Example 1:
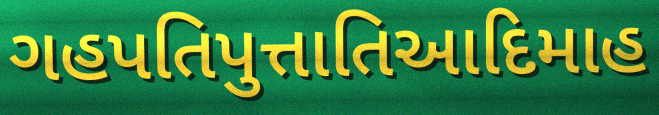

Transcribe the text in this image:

ગહપતિપુત્તાતિઆદિમાહ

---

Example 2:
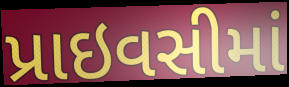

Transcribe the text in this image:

પ્રાઇવસીમાં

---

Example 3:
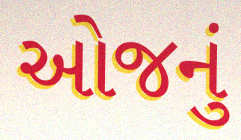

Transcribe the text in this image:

ઓજનું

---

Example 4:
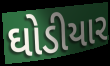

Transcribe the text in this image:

ઘોડીયાર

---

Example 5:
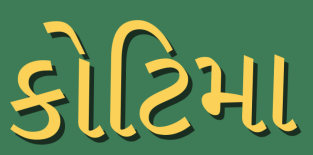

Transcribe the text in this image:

કોટિમા